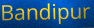
Bandipur